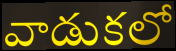
వాడుకలో